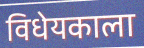
विधेयकाला